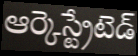
ఆర్కెస్ట్రేటెడ్